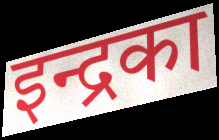
इन्द्रका